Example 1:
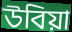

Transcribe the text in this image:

উবিয়া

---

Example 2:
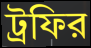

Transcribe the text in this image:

ট্রফির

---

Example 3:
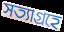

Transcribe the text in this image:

সত্যাগ্রহে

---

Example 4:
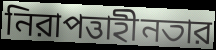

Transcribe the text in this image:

নিরাপত্তাহীনতার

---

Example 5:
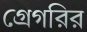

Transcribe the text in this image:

গ্রেগরির